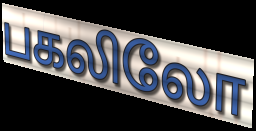
பகலிலோ